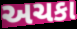
અચકા